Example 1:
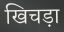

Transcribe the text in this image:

खिचड़ा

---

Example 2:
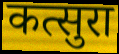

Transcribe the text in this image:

कत्सुरा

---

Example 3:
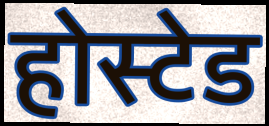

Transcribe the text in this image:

होस्टेड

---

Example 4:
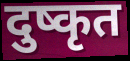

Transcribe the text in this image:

दुष्कृत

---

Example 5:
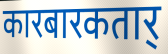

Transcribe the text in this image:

कारबारकतार्